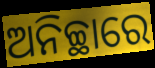
ଅନିଚ୍ଛାରେ